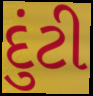
દુંટી